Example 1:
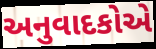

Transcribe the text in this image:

અનુવાદકોએ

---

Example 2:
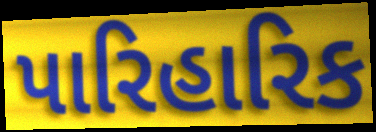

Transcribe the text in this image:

પારિહારિક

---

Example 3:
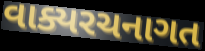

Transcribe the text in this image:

વાક્યરચનાગત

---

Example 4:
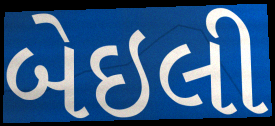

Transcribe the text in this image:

બેઇલી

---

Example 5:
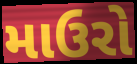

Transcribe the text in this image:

માઉરો